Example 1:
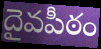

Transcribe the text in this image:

దైవపీఠం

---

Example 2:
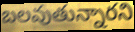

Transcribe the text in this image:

బలవుతున్నారని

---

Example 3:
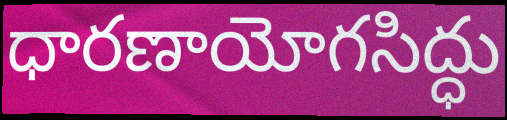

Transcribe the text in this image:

ధారణాయోగసిద్ధు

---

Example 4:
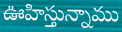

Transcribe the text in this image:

ఊహిస్తున్నాము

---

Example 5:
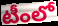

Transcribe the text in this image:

టీంలో